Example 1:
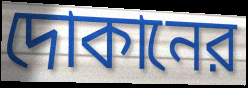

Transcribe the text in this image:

দোকানের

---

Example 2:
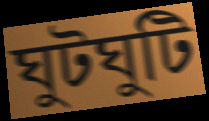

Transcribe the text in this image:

ঘুটঘুটি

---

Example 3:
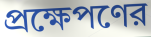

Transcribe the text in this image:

প্রক্ষেপণের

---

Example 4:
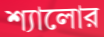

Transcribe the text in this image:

শ্যালোর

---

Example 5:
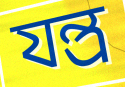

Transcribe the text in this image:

যন্ত্র